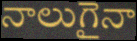
నాలుగైనా